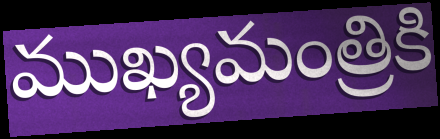
ముఖ్యమంత్రికి